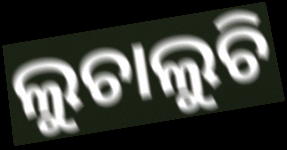
ଲୁଚାଲୁଚି